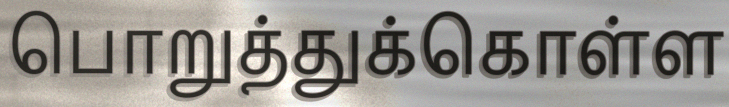
பொறுத்துக்கொள்ள